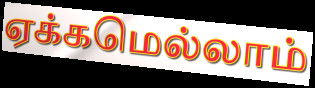
ஏக்கமெல்லாம்